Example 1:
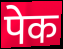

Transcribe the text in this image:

पेक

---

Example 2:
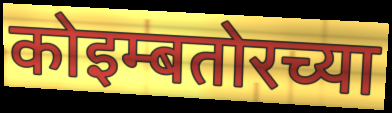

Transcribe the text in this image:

कोइम्बतोरच्या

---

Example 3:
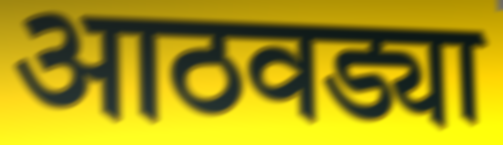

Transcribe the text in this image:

आठवड्या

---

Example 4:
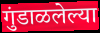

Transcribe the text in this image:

गुंडाळलेल्या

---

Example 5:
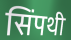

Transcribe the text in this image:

सिंपथी